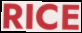
RICE